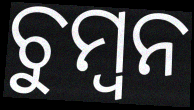
ଚୁମ୍ୱନ